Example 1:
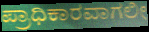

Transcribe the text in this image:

ಪ್ರಾಧಿಕಾರವಾಗಲೀ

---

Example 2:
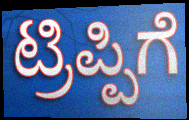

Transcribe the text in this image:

ಟ್ರಿಪ್ಪಿಗೆ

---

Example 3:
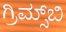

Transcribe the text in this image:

ಗ್ರಿಮ್ಸ್‌ಬಿ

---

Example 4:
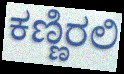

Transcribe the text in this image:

ಕಣ್ಣಿರಲಿ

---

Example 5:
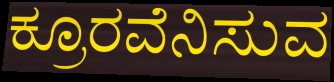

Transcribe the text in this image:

ಕ್ರೂರವೆನಿಸುವ